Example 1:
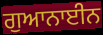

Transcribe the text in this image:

ਗੁਆਨਾਈਨ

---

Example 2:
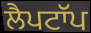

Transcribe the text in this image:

ਲੈਪਟਾੱਪ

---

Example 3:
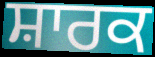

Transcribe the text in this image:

ਸ਼ਾਰਕ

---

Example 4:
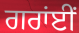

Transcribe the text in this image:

ਗਰਾਂਈਂ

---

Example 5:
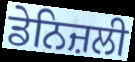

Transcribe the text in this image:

ਡੇਨਿਜ਼ਲੀ